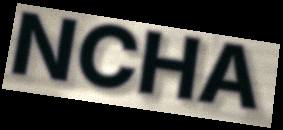
NCHA